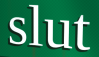
slut